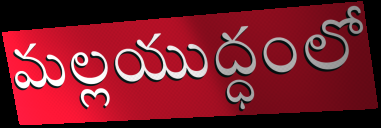
మల్లయుద్ధంలో